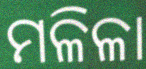
ମଳିଳା